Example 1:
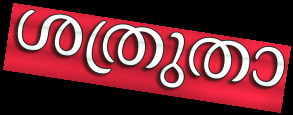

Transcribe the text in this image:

ശത്രുതാ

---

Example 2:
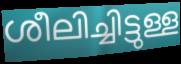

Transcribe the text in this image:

ശീലിച്ചിട്ടുള്ള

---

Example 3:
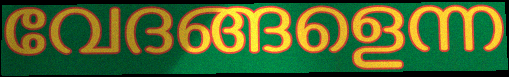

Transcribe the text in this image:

വേദങ്ങളെന്ന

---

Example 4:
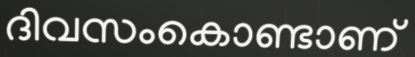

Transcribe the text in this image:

ദിവസംകൊണ്ടാണ്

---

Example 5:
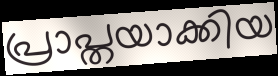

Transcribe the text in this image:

പ്രാപ്തയാക്കിയ